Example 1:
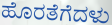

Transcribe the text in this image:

ಹೊರತೆಗೆದಳು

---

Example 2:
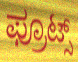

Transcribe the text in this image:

ಫ್ರೂಟ್ಸ್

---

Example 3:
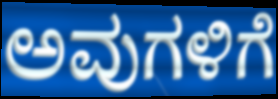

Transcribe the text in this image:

ಅವುಗಳಿಗೆ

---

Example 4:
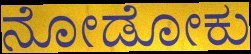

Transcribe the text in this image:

ನೋಡೋಕು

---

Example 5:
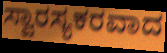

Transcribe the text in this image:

ಸ್ವಾರಸ್ಯಕರವಾದ